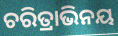
ଚରିତ୍ରାଭିନୟ